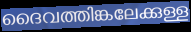
ദൈവത്തിങ്കലേക്കുള്ള